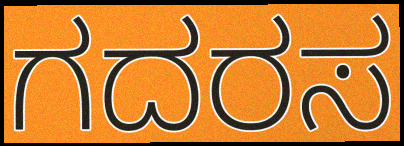
ಗದರಸ